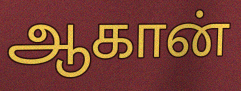
ஆகான்